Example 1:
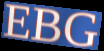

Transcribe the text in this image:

EBG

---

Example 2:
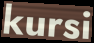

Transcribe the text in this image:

kursi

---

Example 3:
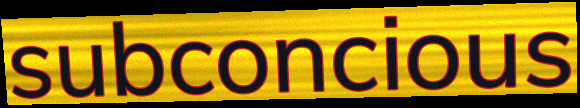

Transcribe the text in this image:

subconcious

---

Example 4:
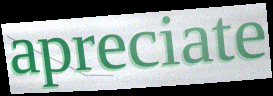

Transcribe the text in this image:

apreciate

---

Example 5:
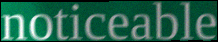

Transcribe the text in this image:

noticeable